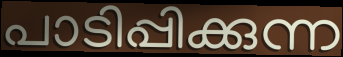
പാടിപ്പിക്കുന്ന